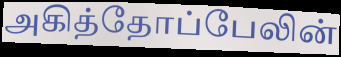
அகித்தோப்பேலின்